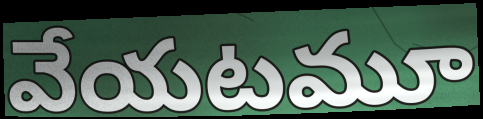
వేయటమూ